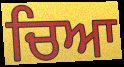
ਚਿਆ